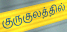
குருகுலத்தில்